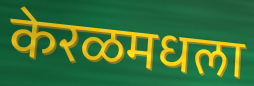
केरळमधला